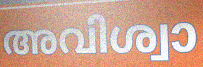
അവിശ്വാ